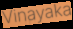
Vinayaka